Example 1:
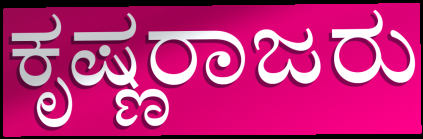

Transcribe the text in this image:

ಕೃಷ್ಣರಾಜರು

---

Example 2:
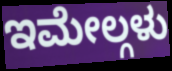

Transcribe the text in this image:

ಇಮೇಲ್ಗಳು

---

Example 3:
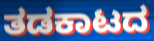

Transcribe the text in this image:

ತಡಕಾಟದ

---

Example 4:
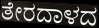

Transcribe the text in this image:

ತೇರದಾಳದ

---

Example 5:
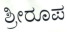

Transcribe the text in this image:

ಶ್ರೀರೂಪ